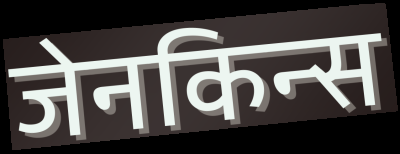
जेनकिन्स